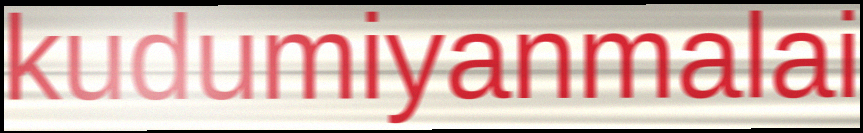
kudumiyanmalai